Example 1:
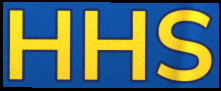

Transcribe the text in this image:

HHS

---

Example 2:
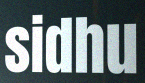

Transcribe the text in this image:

sidhu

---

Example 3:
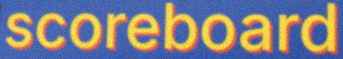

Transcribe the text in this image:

scoreboard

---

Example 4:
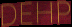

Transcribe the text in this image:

DEHP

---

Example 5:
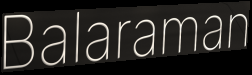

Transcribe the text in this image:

Balaraman